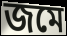
জমে